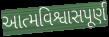
આત્મવિશ્વાસપૂર્ણ